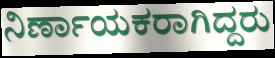
ನಿರ್ಣಾಯಕರಾಗಿದ್ದರು